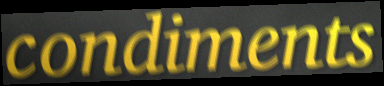
condiments